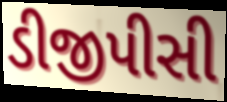
ડીજીપીસી